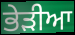
ਭੇੜੀਆ